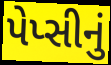
પેપ્સીનું